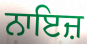
ਨਾਇਜ਼